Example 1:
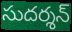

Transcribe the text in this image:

సుదర్శన్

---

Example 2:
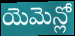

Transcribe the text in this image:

యెమెన్లో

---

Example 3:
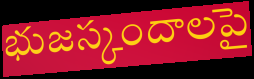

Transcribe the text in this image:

భుజస్కందాలపై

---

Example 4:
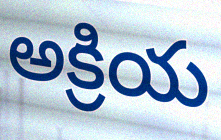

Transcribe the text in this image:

అక్రియ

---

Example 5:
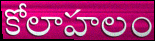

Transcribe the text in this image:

కోలాహలం